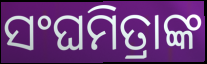
ସଂଘମିତ୍ରାଙ୍କ